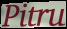
Pitru